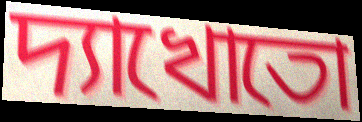
দ্যাখোতো